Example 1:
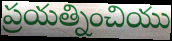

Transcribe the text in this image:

ప్రయత్నించియు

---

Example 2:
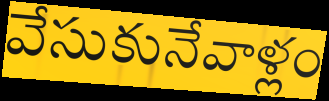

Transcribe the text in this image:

వేసుకునేవాళ్లం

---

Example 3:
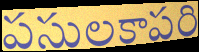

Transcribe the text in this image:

పసులకాపరి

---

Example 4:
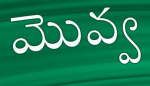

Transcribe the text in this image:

మొవ్వ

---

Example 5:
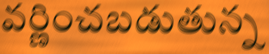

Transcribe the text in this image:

వర్ణించబడుతున్న